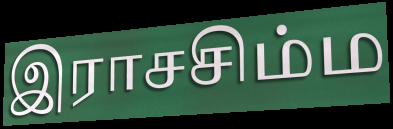
இராசசிம்ம